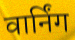
वार्निंग